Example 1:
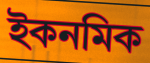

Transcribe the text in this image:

ইকনমিক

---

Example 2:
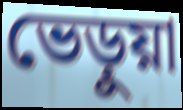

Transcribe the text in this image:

ভেড়ুয়া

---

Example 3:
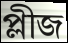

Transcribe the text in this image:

প্লীজ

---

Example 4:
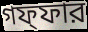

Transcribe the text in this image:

গফ্ফার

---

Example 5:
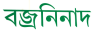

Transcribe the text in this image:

বজ্রনিনাদ